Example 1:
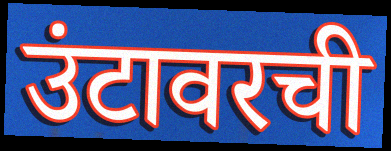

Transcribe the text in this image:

उंटावरची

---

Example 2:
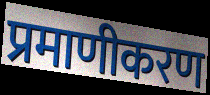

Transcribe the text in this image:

प्रमाणीकरण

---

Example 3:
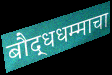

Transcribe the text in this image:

बौद्धधम्माचा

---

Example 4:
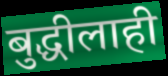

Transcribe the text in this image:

बुद्धीलाही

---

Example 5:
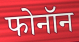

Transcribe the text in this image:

फोनॉन